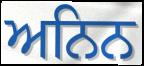
ਅਨਿਨ